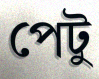
পেটু